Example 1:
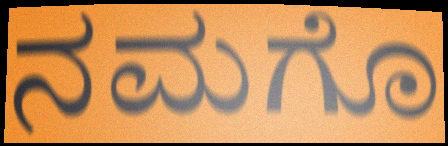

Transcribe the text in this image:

ನಮಗೊ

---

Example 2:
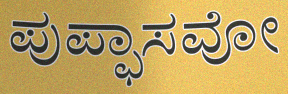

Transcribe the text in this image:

ಪುಪ್ಫಾಸವೋ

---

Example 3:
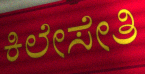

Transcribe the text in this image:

ಕಿಲೇಸೇತಿ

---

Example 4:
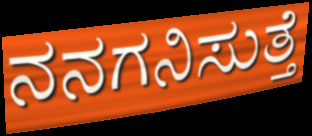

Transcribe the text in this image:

ನನಗನಿಸುತ್ತೆ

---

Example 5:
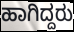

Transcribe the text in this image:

ಹಾಗಿದ್ದರು